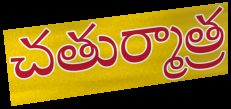
చతుర్మాత్ర